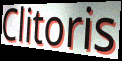
Clitoris